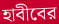
হাবীবের